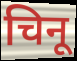
चिनू